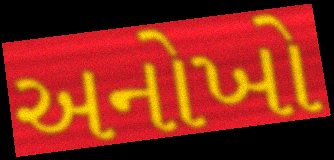
અનોખો